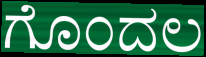
ಗೊಂದಲ